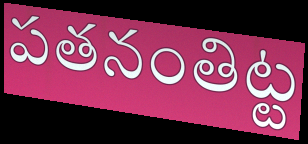
పతనంతిట్ట